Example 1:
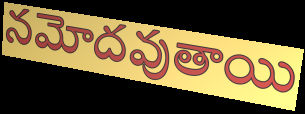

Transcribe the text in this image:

నమోదవుతాయి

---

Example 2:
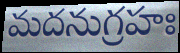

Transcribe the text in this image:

మదనుగ్రహః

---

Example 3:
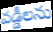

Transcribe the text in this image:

వడ్డీలను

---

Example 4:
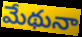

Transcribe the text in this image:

మేథునా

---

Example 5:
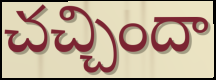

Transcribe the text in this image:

చచ్చిందా